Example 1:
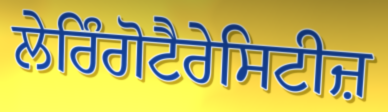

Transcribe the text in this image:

ਲੇਰਿੰਗੋਟੈਰੇਸਿਟੀਜ਼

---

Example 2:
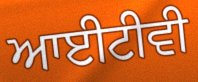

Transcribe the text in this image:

ਆਈਟੀਵੀ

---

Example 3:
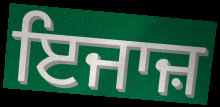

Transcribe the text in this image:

ਇਜਾਜ਼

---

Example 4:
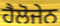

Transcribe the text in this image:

ਹੈਲੋਜੇਨ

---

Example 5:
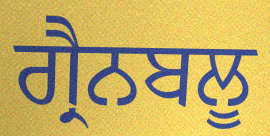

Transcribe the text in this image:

ਗ੍ਰੈਨਬਲੂ